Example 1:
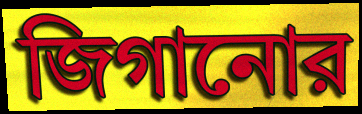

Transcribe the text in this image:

জিগানোর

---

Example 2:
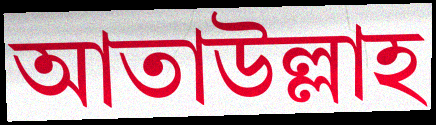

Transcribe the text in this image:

আতাউল্লাহ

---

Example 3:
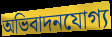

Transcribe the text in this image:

অভিবাদনযোগ্য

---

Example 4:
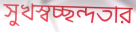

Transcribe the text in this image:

সুখস্বচ্ছন্দতার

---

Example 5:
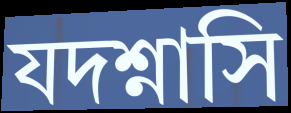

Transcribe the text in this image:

যদশ্নাসি